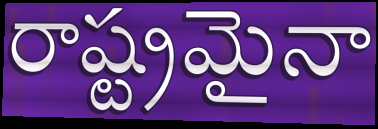
రాష్ట్రమైనా